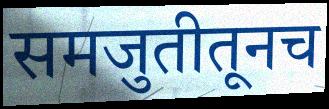
समजुतीतूनच